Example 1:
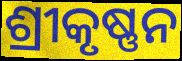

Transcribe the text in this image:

ଶ୍ରୀକୃଷ୍ଣନ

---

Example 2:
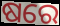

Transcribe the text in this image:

ଷରେ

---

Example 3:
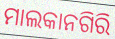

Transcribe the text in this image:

ମାଲକାନଗିରି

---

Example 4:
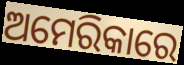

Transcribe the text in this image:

ଅମେରିକାରେ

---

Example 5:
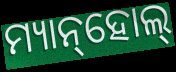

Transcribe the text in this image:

ମ୍ୟାନ୍‌ହୋଲ୍